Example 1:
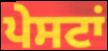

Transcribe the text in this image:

ਪੇਸਟਾਂ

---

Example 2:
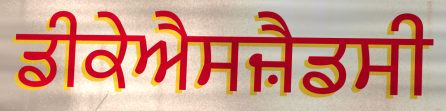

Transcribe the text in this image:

ਡੀਕੇਐਸਜ਼ੈਡਸੀ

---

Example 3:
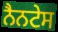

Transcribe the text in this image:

ਨੈਨਟੇਸ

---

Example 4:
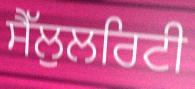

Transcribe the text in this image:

ਸੈੱਲੁਲਰਿਟੀ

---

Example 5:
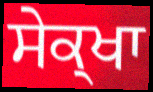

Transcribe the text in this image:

ਸੇਕ੍ਖਾ